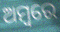
ଅମ୍ବରେ